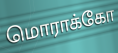
மொராக்கோ